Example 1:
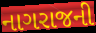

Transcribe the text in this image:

નાગરાજની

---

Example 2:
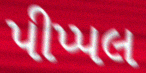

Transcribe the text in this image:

પીપ્પલ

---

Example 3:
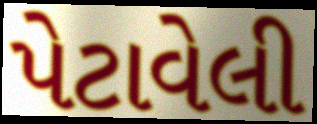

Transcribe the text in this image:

પેટાવેલી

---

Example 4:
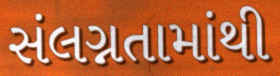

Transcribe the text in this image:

સંલગ્નતામાંથી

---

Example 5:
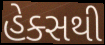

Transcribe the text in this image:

હેક્સથી